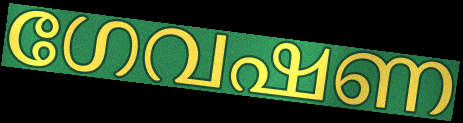
ഗേവഷണ